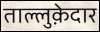
ताल्लुक़ेदार